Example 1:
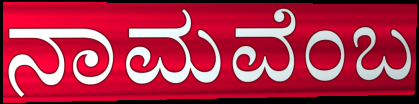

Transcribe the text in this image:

ನಾಮವೆಂಬ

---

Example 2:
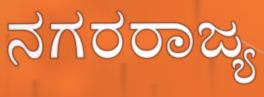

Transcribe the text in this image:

ನಗರರಾಜ್ಯ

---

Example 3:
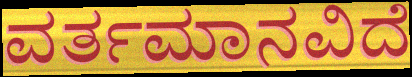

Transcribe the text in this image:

ವರ್ತಮಾನವಿದೆ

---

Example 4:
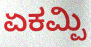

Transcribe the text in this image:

ಏಕಮ್ಪಿ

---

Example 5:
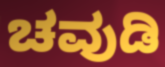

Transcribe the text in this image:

ಚವುಡಿ